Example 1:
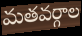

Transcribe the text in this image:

మతవర్గాల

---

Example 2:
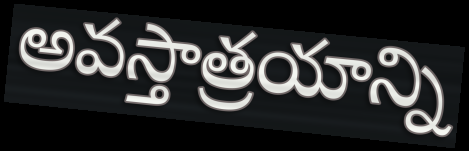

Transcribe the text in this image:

అవస్తాత్రయాన్ని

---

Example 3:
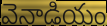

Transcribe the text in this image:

వెనాడియం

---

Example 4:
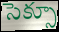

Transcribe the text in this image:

సెక్సూ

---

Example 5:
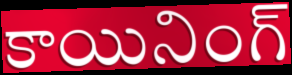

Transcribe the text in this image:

కాయినింగ్